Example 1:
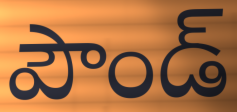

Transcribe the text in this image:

పౌండ్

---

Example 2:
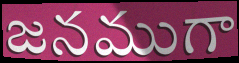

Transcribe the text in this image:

జనముగా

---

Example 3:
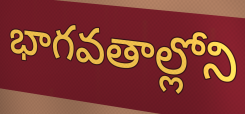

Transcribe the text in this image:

భాగవతాల్లోని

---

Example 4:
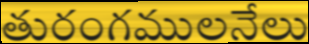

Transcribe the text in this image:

తురంగములనేలు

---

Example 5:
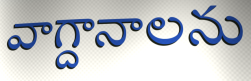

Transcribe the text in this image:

వాగ్దానాలను